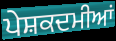
ਪੇਸ਼ਕਦਮੀਆਂ